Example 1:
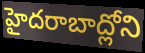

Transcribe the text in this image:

హైదరాబాద్లోని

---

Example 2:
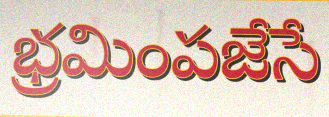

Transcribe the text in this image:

భ్రమింపజేసే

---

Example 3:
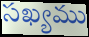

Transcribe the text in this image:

సఖ్యము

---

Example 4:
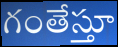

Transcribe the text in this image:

గంతేస్తూ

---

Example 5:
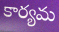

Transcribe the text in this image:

కార్యమ